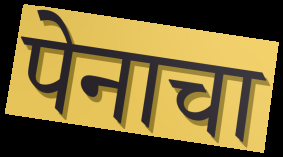
पेनाचा